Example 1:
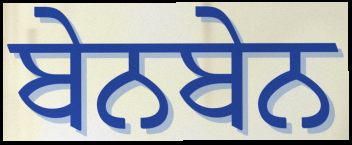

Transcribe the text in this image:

ਬੇਨਬੇਨ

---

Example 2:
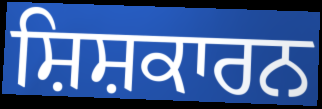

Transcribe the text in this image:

ਸ਼ਿਸ਼ਕਾਰਨ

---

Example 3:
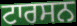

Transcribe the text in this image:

ਟਾਰਸਨ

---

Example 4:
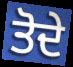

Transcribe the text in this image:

ਤੋਦੇ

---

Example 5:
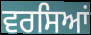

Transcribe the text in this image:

ਵਰਸਿਆਂ